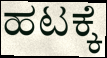
ಹಟಕ್ಕೆ